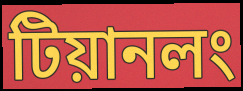
টিয়ানলং